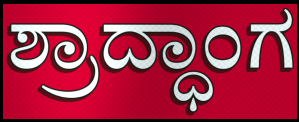
ಶ್ರಾದ್ಧಾಂಗ